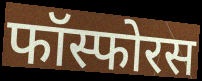
फॉस्फोरस